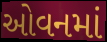
ઓવનમાં